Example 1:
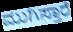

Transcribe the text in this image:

ಮುಗಿಸ್ತಾರೆ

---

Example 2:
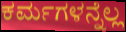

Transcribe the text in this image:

ಕರ್ಮಗಳನ್ನೆಲ್ಲ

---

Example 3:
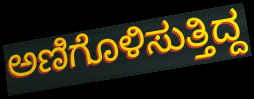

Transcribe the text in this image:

ಅಣಿಗೊಳಿಸುತ್ತಿದ್ದ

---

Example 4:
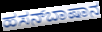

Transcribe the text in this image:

ಹಸನ್‌ಬಾಷಾನ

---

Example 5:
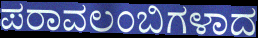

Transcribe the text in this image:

ಪರಾವಲಂಬಿಗಳಾದ